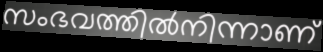
സംഭവത്തിൽനിന്നാണ്